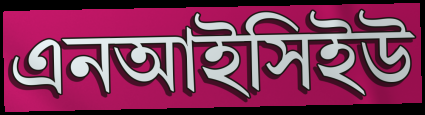
এনআইসিইউ